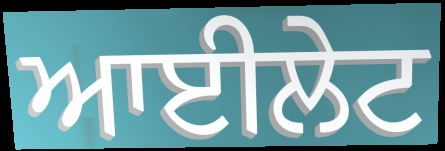
ਆਈਲੇਟ